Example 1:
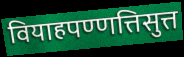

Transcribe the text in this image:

वियाहपण्णत्तिसुत्त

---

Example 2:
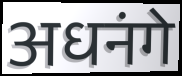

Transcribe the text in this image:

अधनंगे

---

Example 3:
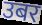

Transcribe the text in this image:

उबर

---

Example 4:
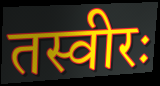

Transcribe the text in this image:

तस्वीरः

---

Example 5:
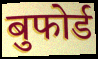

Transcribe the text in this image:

बुफोर्ड